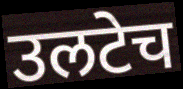
उलटेच